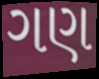
ગણ